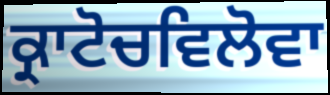
ਕ੍ਰਾਟੋਚਵਿਲੋਵਾ